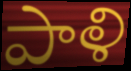
పాళి